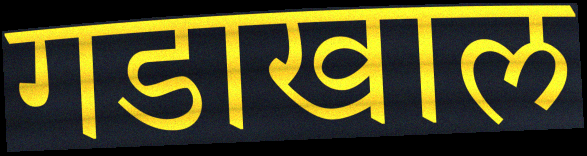
गडाखाल